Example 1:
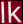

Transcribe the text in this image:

lk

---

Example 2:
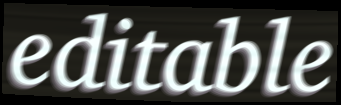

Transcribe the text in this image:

editable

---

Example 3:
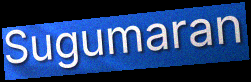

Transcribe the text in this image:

Sugumaran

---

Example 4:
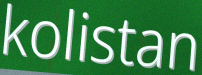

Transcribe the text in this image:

kolistan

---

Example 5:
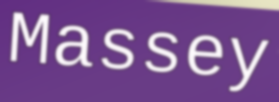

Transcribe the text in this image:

Massey